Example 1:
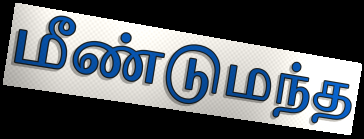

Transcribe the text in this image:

மீண்டுமந்த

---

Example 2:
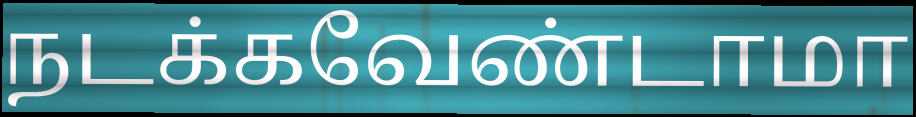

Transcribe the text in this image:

நடக்கவேண்டாமா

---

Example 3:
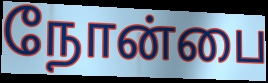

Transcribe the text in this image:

நோன்பை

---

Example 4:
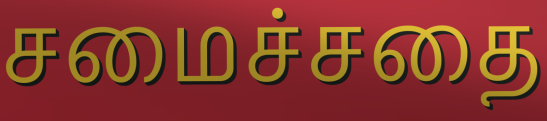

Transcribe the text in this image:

சமைச்சதை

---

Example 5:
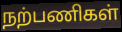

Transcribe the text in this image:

நற்பணிகள்